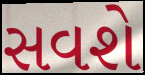
સવશે